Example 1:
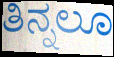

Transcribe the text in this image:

ತಿನ್ನಲೂ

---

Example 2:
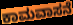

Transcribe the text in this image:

ಕಾಮವಾಸನೆ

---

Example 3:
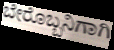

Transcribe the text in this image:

ಬೇರೊಬ್ಬನಿಗಾಗಿ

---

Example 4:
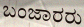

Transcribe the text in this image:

ಬಂಜಾರರು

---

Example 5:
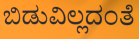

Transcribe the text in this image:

ಬಿಡುವಿಲ್ಲದಂತೆ